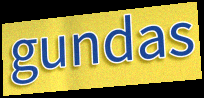
gundas